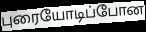
புரையோடிப்போன